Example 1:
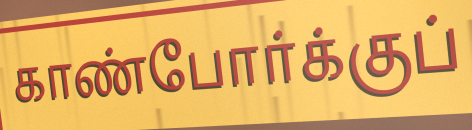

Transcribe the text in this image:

காண்போர்க்குப்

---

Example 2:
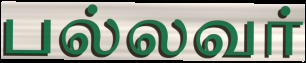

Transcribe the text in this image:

பல்லவர்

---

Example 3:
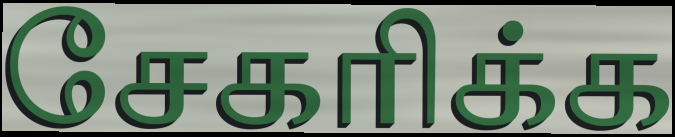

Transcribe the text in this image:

சேகரிக்க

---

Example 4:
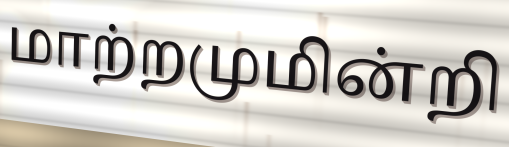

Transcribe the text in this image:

மாற்றமுமின்றி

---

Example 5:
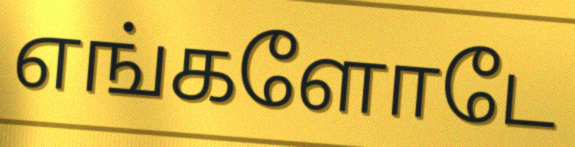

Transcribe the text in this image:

எங்களோடே